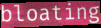
bloating